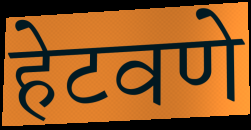
हेटवणे